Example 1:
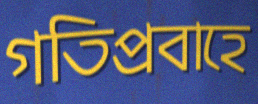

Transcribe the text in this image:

গতিপ্রবাহে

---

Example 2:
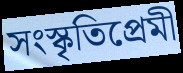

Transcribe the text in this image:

সংস্কৃতিপ্রেমী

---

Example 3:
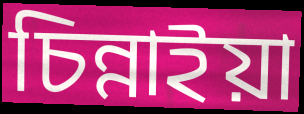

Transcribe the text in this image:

চিন্নাইয়া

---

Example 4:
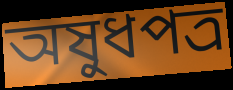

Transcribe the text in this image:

অষুধপত্র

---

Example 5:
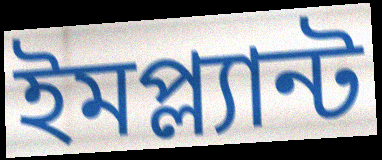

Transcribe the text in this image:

ইমপ্ল্যান্ট